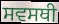
ਸਵਸਥੀ